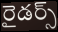
రైడర్స్